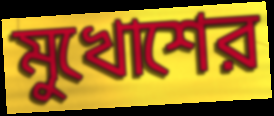
মুখোশের